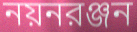
নয়নরঞ্জন